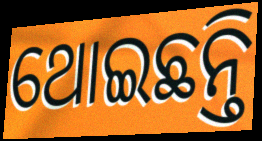
ଥୋଇଛନ୍ତି